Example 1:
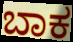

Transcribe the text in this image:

ಬಾಕ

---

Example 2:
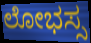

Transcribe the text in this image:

ಲೋಭಸ್ಸ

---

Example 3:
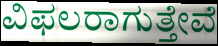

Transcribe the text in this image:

ವಿಫಲರಾಗುತ್ತೇವೆ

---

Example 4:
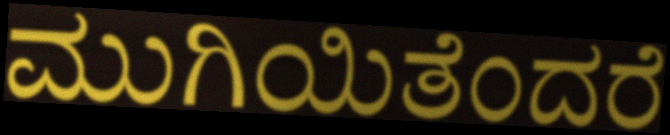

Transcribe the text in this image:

ಮುಗಿಯಿತೆಂದರೆ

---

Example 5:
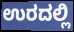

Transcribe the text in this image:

ಉರದಲ್ಲಿ